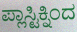
ಪ್ಲಾಸ್ಟಿಕ್ನಿಂದ